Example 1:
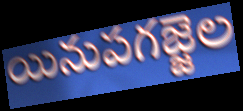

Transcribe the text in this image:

యినుపగజ్జెల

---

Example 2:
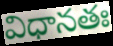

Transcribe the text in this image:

విధానతః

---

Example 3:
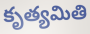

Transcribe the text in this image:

కృత్యమితి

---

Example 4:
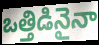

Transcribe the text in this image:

ఒత్తిడినైనా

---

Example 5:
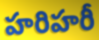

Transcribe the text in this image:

హరిహరీ